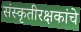
संस्कृतीरक्षकांचे